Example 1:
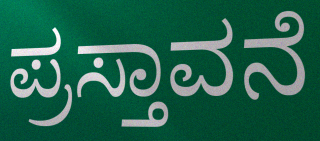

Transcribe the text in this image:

ಪ್ರಸ್ತಾವನೆ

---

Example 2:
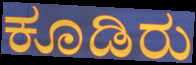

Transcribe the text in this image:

ಕೂಡಿರು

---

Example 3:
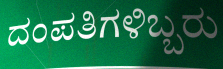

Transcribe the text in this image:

ದಂಪತಿಗಳಿಬ್ಬರು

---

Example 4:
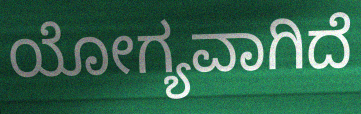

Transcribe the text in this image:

ಯೋಗ್ಯವಾಗಿದೆ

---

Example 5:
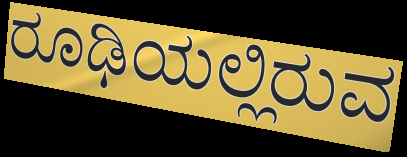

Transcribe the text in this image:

ರೂಢಿಯಲ್ಲಿರುವ